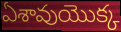
ఏశావుయొక్క